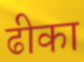
ढीका